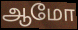
ஆமோ